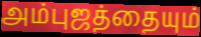
அம்புஜத்தையும்